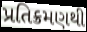
પ્રતિક્રમણથી